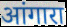
आंगारा